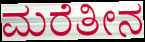
ಮರೆತೀನ